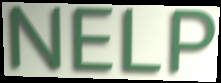
NELP